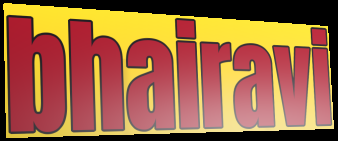
bhairavi